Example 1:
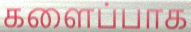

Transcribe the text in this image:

களைப்பாக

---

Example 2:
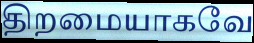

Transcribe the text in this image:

திறமையாகவே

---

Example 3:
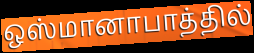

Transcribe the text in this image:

ஒஸ்மானாபாத்தில்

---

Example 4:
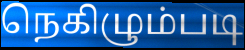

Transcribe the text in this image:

நெகிழும்படி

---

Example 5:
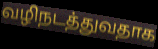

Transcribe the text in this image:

வழிநடத்துவதாக